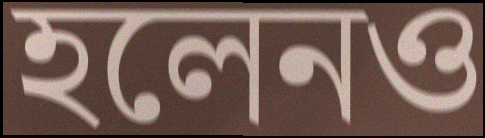
হলেনও